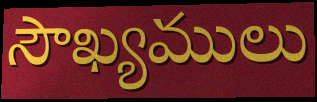
సౌఖ్యములు